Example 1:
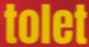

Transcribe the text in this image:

tolet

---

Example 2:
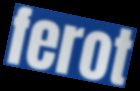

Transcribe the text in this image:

ferot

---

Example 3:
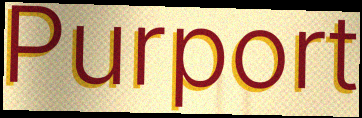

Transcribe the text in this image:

Purport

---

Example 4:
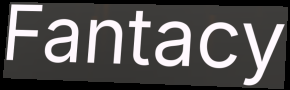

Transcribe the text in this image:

Fantacy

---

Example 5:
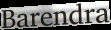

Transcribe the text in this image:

Barendra